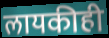
लायकीही